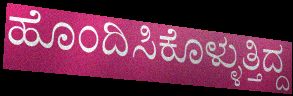
ಹೊಂದಿಸಿಕೊಳ್ಳುತ್ತಿದ್ದ